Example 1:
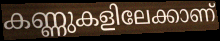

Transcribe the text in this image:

കണ്ണുകളിലേക്കാണ്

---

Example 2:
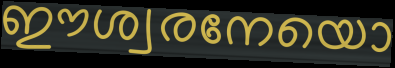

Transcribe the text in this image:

ഈശ്വരനേയൊ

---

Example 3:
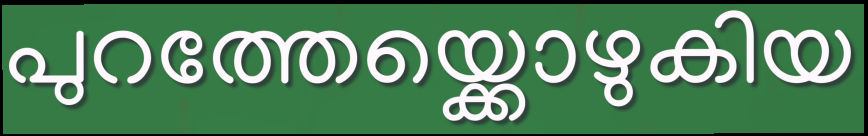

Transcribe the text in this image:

പുറത്തേയ്ക്കൊഴുകിയ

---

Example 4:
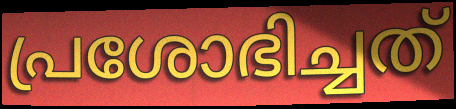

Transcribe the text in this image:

പ്രശോഭിച്ചത്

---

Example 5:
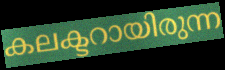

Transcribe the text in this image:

കലക്ടറായിരുന്ന